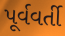
પૂર્વવર્તી